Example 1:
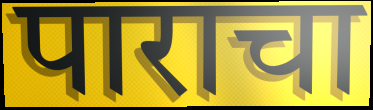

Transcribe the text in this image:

पाराचा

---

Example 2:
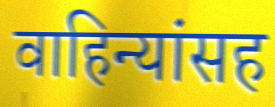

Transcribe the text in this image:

वाहिन्यांसह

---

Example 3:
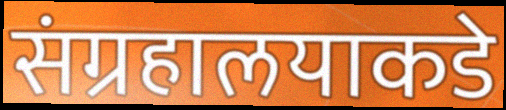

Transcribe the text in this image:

संग्रहालयाकडे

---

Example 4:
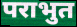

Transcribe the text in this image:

पराभुत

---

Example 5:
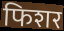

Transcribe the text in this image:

फिशर